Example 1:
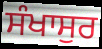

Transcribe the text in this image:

ਸੰਖਾਸੁਰ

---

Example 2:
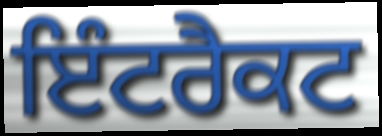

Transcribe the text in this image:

ਇੰਟਰੈਕਟ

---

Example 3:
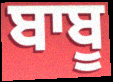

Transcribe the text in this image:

ਬਾਬੂ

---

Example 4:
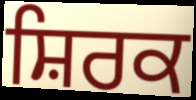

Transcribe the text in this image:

ਸ਼ਿਰਕ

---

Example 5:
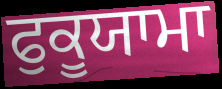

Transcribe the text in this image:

ਫੁਕੂਯਾਮਾ